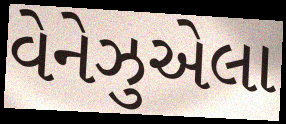
વેનેઝુએલા